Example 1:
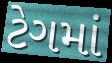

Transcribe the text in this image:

ટેગમાં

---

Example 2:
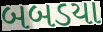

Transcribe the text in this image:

બબડયા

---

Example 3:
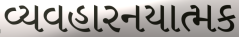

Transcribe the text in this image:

વ્યવહારનયાત્મક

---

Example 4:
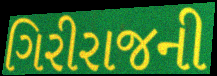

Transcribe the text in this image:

ગિરીરાજની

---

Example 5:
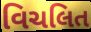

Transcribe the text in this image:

વિચલિત